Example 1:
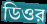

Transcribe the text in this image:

ডিওর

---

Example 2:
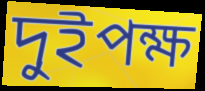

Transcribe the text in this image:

দুইপক্ষ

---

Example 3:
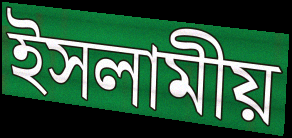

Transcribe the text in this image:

ইসলামীয়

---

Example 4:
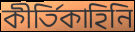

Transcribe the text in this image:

কীর্তিকাহিনি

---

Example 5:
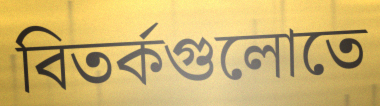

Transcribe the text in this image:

বিতর্কগুলোতে